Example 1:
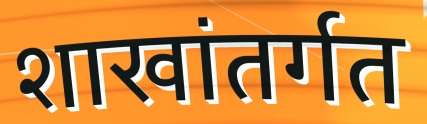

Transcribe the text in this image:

शाखांतर्गत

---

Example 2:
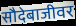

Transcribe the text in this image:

सौदेबाजीवर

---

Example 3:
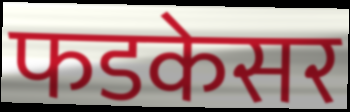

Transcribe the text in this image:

फडकेसर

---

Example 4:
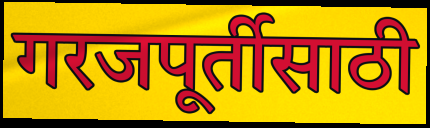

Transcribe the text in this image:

गरजपूर्तीसाठी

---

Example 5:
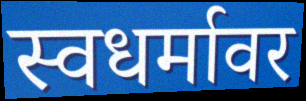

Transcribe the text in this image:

स्वधर्मावर